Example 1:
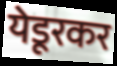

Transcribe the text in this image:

येडूरकर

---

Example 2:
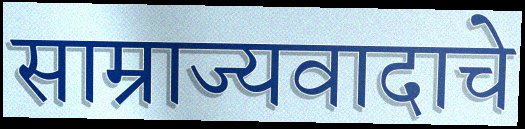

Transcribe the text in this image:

साम्राज्यवादाचे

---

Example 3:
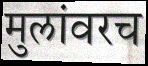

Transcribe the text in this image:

मुलांवरच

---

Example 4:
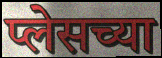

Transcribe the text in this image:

प्लेसच्या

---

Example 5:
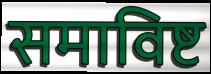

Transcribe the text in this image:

समाविष्ट